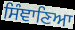
ਸਿੰਞਾਣਿਆ